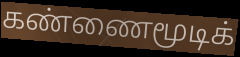
கண்ணைமூடிக்